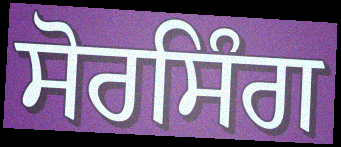
ਸੋਰਸਿੰਗ